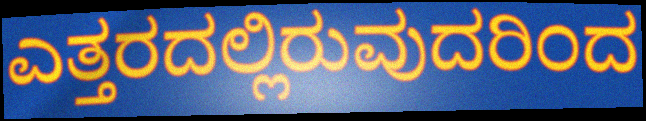
ಎತ್ತರದಲ್ಲಿರುವುದರಿಂದ